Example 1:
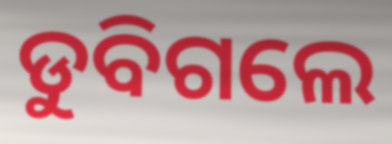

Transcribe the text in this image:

ଡୁବିଗଲେ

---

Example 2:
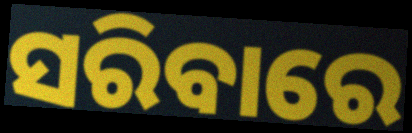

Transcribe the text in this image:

ସରିବାରେ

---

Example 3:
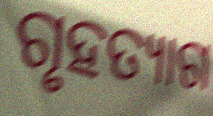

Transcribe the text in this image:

ଗୃହତ୍ୟାଗ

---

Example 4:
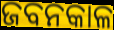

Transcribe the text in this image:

ଜବନକାଳ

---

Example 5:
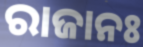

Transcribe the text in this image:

ରାଜାନଃ